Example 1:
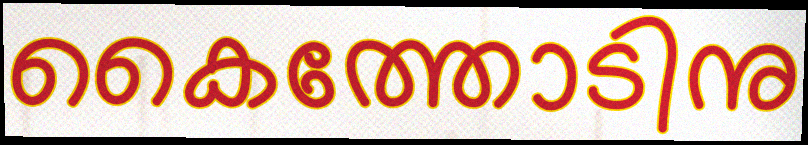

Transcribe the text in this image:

കൈത്തോടിനു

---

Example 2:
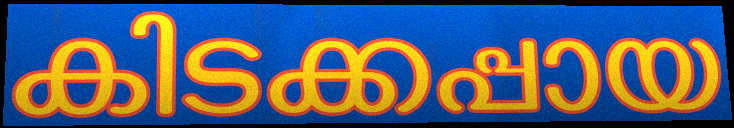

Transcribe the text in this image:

കിടക്കപ്പായ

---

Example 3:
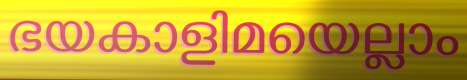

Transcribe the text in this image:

ഭയകാളിമയെല്ലാം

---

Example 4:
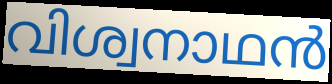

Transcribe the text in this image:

വിശ്വനാഥൻ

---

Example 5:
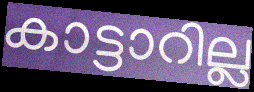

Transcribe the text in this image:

കാട്ടാറില്ല